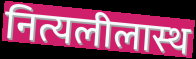
नित्यलीलास्थ